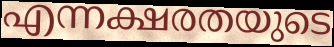
എന്നക്ഷരതയുടെ